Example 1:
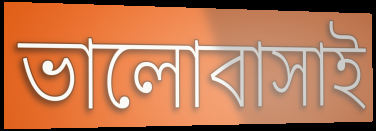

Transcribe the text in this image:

ভালোবাসাই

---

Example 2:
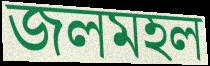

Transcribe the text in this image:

জলমহল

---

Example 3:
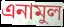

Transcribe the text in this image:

এনামুল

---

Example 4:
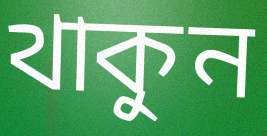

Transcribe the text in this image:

থাকুন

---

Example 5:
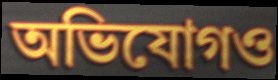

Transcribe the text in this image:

অভিযোগও